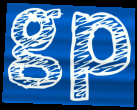
gp